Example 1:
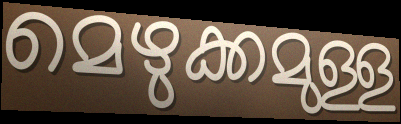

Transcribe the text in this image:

മെഴുക്കമുള്ള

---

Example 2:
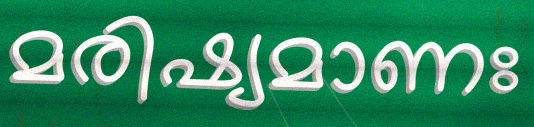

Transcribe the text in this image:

മരിഷ്യമാണഃ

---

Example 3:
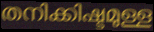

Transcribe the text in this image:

തനിക്കിഷ്ടമുള്ള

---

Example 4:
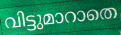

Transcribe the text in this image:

വിട്ടുമാറാതെ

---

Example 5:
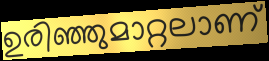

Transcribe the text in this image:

ഉരിഞ്ഞുമാറ്റലാണ്